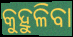
କୁହୁଳିବା